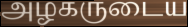
அழகருடைய